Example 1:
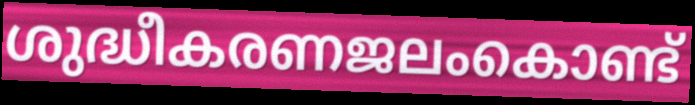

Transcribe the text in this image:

ശുദ്ധീകരണജലംകൊണ്ട്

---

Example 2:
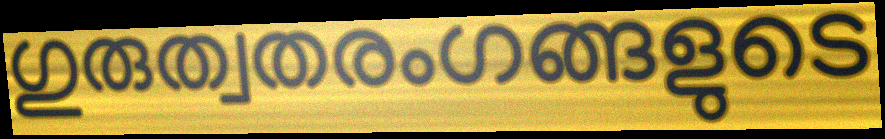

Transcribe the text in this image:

ഗുരുത്വതരംഗങ്ങളുടെ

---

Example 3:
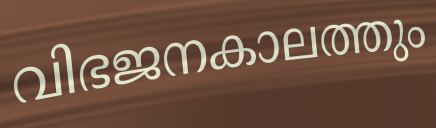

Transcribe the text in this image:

വിഭജനകാലത്തും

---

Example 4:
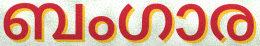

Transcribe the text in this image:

ബംഗാര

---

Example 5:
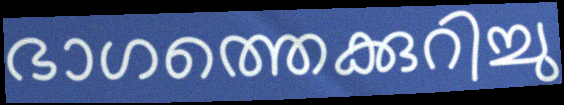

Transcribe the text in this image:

ഭാഗത്തെക്കുറിച്ചു